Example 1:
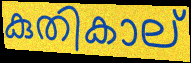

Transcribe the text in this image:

കുതികാല്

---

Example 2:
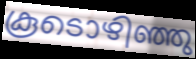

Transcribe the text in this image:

കൂടൊഴിഞ്ഞു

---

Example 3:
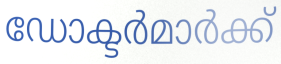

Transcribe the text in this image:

ഡോക്ടർമാർക്ക്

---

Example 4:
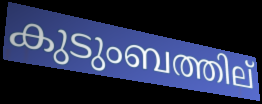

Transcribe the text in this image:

കുടുംബത്തില്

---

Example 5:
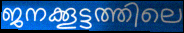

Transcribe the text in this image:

ജനക്കൂട്ടത്തിലെ